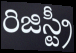
రిజిస్ట్రీ